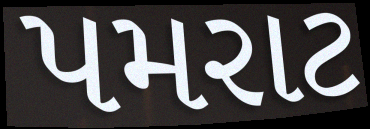
પમરાટ